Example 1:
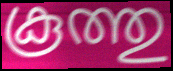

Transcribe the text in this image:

കൂത്തു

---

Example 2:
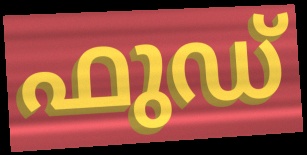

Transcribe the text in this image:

ഫുഡ്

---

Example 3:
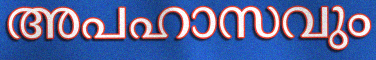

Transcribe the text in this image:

അപഹാസവും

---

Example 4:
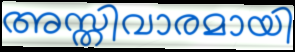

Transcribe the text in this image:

അസ്തിവാരമായി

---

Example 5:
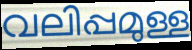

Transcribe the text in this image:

വലിപ്പമുള്ള